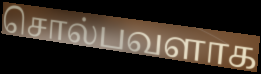
சொல்பவளாக